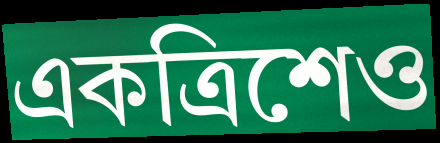
একত্রিশেও